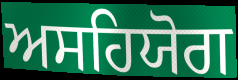
ਅਸਹਿਯੋਗ